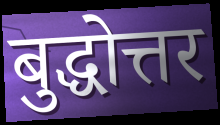
बुद्धोत्तर